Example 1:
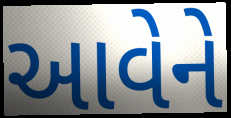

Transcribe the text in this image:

આવેને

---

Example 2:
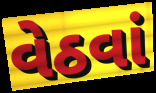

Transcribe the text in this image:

વેઠવાં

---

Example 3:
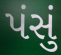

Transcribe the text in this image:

પંસું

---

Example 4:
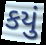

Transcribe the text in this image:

કયું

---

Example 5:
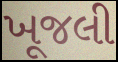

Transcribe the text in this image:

ખૂજલી